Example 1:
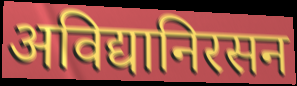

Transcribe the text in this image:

अविद्यानिरसन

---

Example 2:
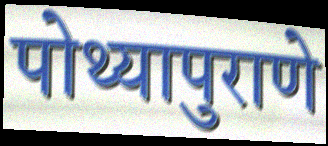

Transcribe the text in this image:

पोथ्यापुराणे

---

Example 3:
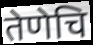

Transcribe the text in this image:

तेणेचि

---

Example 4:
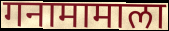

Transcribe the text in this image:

गनामामाला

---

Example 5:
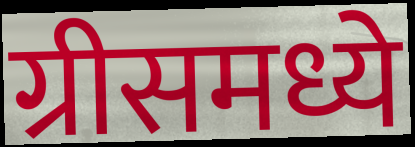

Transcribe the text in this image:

ग्रीसमध्ये